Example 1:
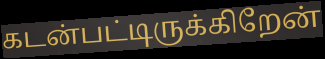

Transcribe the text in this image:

கடன்பட்டிருக்கிறேன்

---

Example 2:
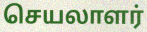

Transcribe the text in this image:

செயலாளர்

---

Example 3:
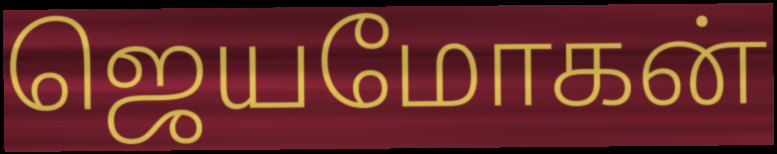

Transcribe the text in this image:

ஜெயமோகன்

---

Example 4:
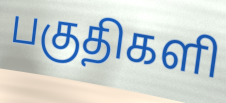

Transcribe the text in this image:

பகுதிகளி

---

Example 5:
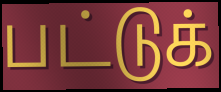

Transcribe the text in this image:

பட்டுக்